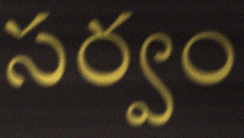
సర్వం